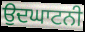
ਉਦਘਾਟਨੀ